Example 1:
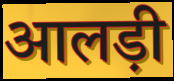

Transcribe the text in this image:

आलड़ी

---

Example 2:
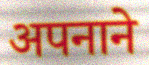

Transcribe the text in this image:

अपनाने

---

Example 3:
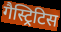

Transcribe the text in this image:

गैस्ट्रिटिस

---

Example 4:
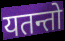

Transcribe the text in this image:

यतन्तो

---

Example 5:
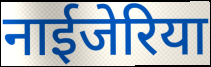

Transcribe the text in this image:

नाईजेरिया